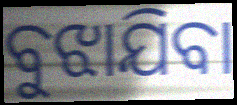
ବୁଝାଯିବା